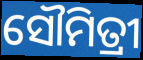
ସୌମିତ୍ରୀ